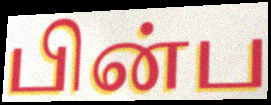
பின்ப